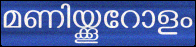
മണിയ്ക്കൂറോളം